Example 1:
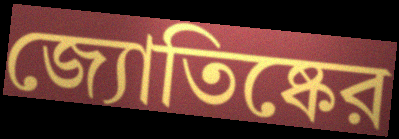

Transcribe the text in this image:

জ্যোতিষ্কের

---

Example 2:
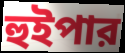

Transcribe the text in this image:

হুইপার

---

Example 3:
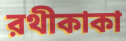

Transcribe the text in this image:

রথীকাকা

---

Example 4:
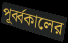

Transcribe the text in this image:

পূর্ব্বকালের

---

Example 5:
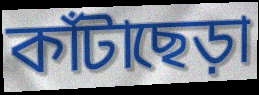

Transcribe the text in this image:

কাঁটাছেড়া